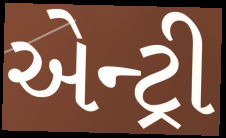
એન્‍ટ્રી